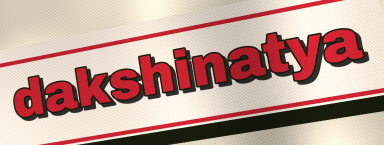
dakshinatya